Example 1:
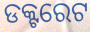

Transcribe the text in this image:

ଡକ୍ଟରେଟ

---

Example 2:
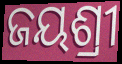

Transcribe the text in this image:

ଜୟଶ୍ରୀ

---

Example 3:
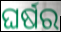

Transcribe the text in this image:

ଘର୍ଷର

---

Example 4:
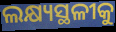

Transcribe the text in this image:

ଲକ୍ଷ୍ୟସ୍ଥଳୀକୁ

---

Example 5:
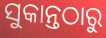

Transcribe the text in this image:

ସୁକାନ୍ତଠାରୁ